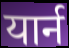
यार्न